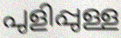
പുളിപ്പുള്ള